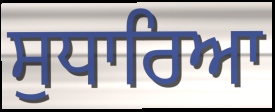
ਸੁਧਾਰਿਆ